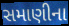
સમાણીના